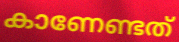
കാണേണ്ടത്